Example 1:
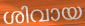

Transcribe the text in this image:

ശിവായ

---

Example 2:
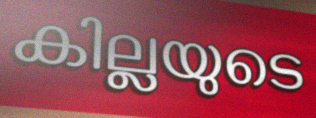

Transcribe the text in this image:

കില്ലയുടെ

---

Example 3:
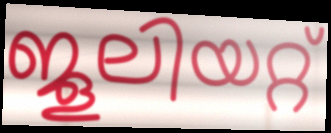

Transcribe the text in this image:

ജൂലിയറ്റ്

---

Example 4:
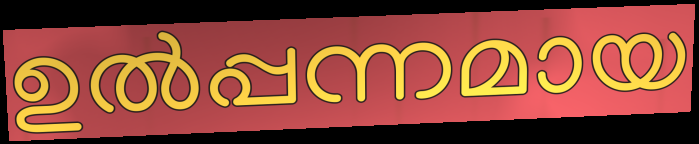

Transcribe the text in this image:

ഉൽപ്പന്നമായ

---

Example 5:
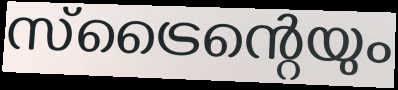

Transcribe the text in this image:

സ്ട്രൈന്റെയും